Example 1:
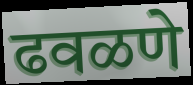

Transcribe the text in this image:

ढवळणे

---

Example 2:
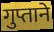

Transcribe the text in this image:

गुप्ताने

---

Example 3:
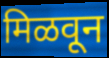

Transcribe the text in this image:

मिळवून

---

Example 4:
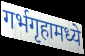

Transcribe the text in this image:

गर्भगृहामध्ये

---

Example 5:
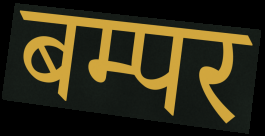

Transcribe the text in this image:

बम्पर